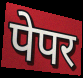
पेपर